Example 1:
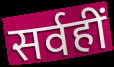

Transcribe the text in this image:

सर्वहीं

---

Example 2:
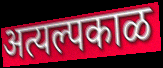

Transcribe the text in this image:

अत्यल्पकाळ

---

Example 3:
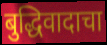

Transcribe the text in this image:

बुद्धिवादाचा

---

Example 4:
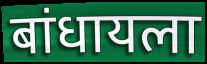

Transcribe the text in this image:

बांधायला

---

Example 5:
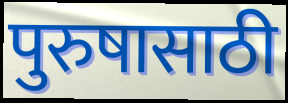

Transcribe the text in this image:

पुरुषासाठी